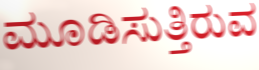
ಮೂಡಿಸುತ್ತಿರುವ